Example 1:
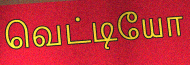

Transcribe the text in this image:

வெட்டியோ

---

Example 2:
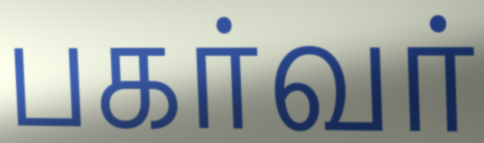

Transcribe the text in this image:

பகர்வர்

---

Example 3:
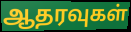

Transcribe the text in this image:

ஆதரவுகள்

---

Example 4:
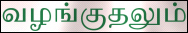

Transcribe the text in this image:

வழங்குதலும்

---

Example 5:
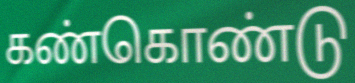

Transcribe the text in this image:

கண்கொண்டு